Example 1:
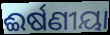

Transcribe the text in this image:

ଈର୍ଷଣୀୟା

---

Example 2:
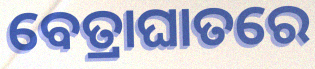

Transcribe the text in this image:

ବେତ୍ରାଘାତରେ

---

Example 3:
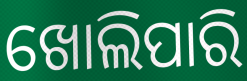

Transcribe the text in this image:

ଖୋଲିପାରି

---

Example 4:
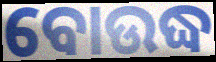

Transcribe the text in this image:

ବୋଉଦ୍ଧ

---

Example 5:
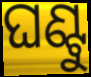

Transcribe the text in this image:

ଘଣ୍ଟୁ